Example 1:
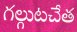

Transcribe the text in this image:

గల్గుటచేత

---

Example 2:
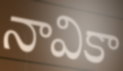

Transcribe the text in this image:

నావికా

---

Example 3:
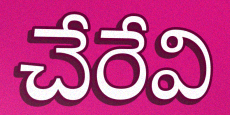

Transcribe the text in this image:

చేరేవి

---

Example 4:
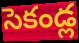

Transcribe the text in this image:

సెకండ్ల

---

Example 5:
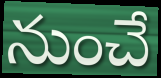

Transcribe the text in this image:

నుంచే